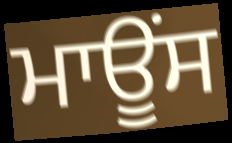
ਮਾਊਂਸ